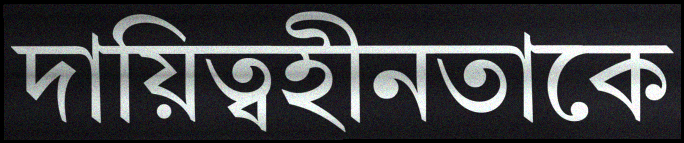
দায়িত্বহীনতাকে